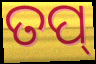
ତପ୍